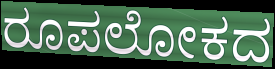
ರೂಪಲೋಕದ